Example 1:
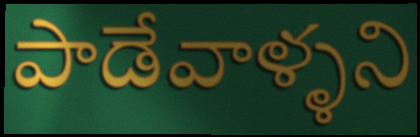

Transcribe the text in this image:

పాడేవాళ్ళని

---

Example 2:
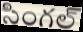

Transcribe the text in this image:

సింగల్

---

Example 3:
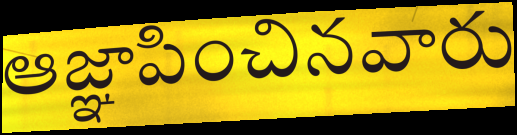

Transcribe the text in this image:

ఆజ్ఞాపించినవారు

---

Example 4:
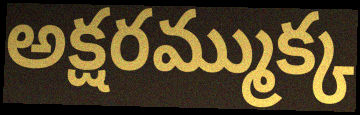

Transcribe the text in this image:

అక్షరమ్ముక్క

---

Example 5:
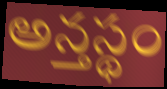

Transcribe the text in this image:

అన్తస్థం